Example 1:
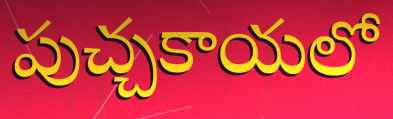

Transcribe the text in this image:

పుచ్చకాయలో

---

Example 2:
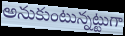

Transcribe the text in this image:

అనుకుంటున్నట్టుగా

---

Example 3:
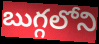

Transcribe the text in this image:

బుగ్గలోని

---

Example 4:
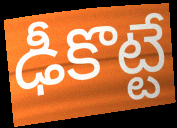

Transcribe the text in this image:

ఢీకొట్టే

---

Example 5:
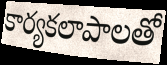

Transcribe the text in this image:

కార్యకలాపాలతో